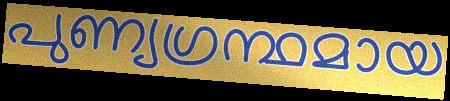
പുണ്യഗ്രന്ഥമായ